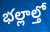
భల్లాల్తో